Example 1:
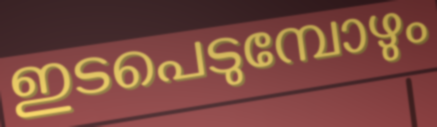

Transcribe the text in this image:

ഇടപെടുമ്പോഴും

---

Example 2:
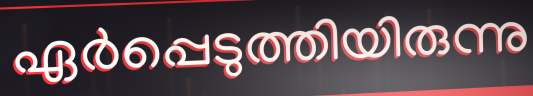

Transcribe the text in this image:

ഏർപ്പെടുത്തിയിരുന്നു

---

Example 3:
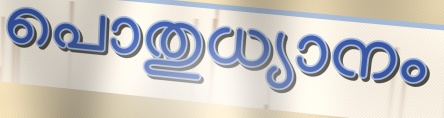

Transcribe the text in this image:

പൊതുധ്യാനം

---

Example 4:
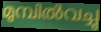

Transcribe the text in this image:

മുമ്പിൽവച്ചു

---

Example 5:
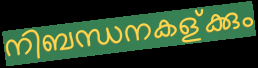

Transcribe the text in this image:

നിബന്ധനകള്ക്കും